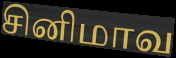
சினிமாவ